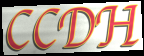
CCDH